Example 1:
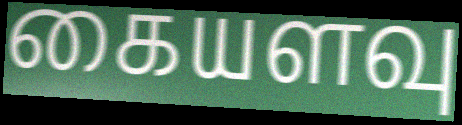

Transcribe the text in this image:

கையளவு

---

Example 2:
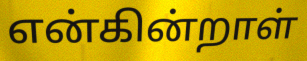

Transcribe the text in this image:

என்கின்றாள்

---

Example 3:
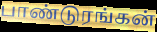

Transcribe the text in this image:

பாண்டுரங்கன்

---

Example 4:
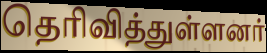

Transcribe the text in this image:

தெரிவித்துள்ளனர்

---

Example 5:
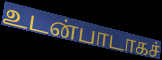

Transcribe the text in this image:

உடன்பாடாகச்